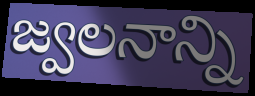
జ్వలనాన్ని